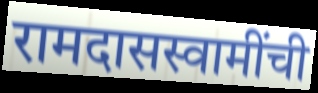
रामदासस्वामींची